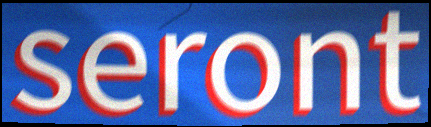
seront